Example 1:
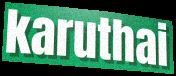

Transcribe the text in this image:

karuthai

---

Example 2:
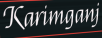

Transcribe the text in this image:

Karimganj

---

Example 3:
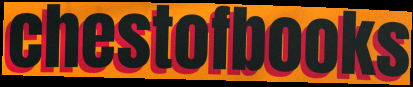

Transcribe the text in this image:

chestofbooks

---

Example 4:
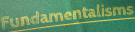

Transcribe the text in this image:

Fundamentalisms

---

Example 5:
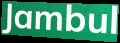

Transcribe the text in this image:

Jambul